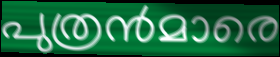
പുത്രൻമാരെ